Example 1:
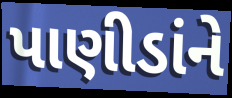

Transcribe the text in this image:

પાણીડાંને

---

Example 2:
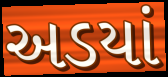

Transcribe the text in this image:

અડયાં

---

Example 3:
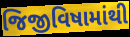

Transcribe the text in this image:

જિજીવિષામાંથી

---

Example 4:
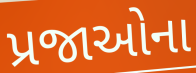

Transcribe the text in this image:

પ્રજાઓના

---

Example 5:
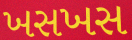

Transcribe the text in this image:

ખસખસ